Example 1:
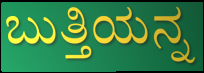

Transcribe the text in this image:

ಬುತ್ತಿಯನ್ನ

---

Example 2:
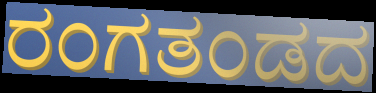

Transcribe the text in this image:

ರಂಗತಂಡದ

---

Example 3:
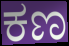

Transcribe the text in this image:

ಕಣ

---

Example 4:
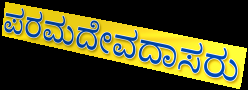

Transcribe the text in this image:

ಪರಮದೇವದಾಸರು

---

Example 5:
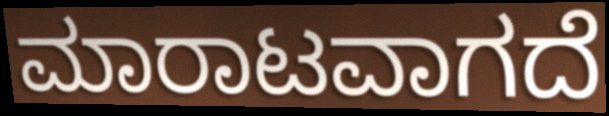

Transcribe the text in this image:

ಮಾರಾಟವಾಗದೆ